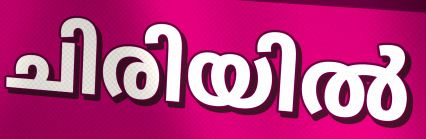
ചിരിയിൽ